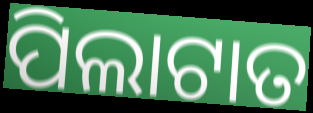
ପିଲାଟାତ